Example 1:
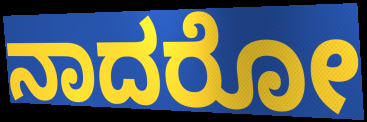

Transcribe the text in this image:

ನಾದರೋ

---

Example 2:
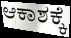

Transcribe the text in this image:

ಆಕಾಶಕ್ಕೆ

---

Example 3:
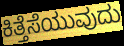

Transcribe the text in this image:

ಕಿತ್ತೆಸೆಯುವುದು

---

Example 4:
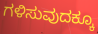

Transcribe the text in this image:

ಗಳಿಸುವುದಕ್ಕೂ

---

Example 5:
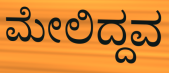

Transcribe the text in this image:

ಮೇಲಿದ್ದವ